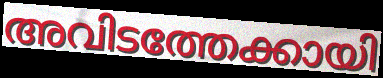
അവിടത്തേക്കായി